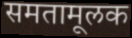
समतामूलक